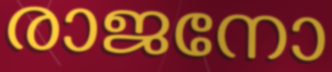
രാജനോ